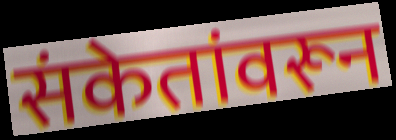
संकेतांवरून